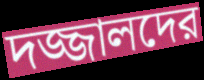
দজ্জালদের